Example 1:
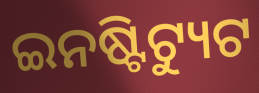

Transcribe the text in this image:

ଇନଷ୍ଟିଟ୍ୟୁଟ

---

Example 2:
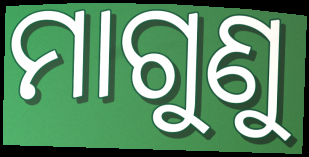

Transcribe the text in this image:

ମାଗୁଣୁ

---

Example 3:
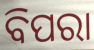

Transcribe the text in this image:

ବିପରା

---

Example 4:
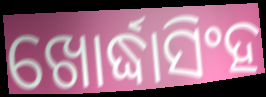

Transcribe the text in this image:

ଖୋର୍ଦ୍ଧାସିଂହ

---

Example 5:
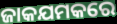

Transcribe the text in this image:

ଜାକଯମକରେ